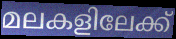
മലകളിലേക്ക്